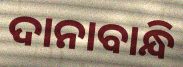
ଦାନାବାନ୍ଧି